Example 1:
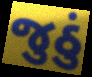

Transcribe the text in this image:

જુઠું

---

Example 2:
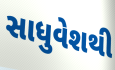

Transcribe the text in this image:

સાધુવેશથી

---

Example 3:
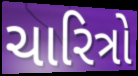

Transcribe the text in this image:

ચારિત્રો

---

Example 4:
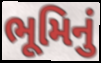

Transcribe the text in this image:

ભૂમિનું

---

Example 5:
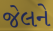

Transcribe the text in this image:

જેલને